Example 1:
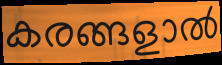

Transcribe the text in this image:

കരങ്ങളാൽ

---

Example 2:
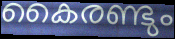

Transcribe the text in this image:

കൈരണ്ടും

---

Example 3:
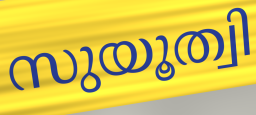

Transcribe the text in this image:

സുയൂത്വി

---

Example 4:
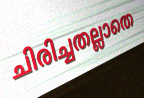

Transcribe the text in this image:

ചിരിച്ചതല്ലാതെ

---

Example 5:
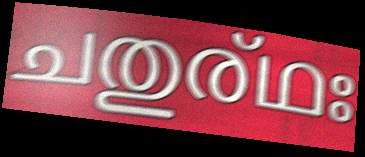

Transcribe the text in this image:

ചതുര്ഥഃ